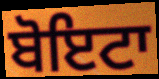
ਬੋਇਟਾ